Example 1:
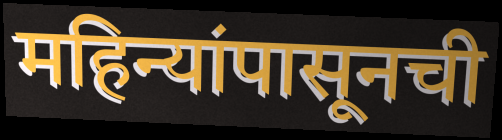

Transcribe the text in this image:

महिन्यांपासूनची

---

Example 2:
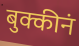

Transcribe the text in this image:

बुक्कीनं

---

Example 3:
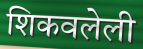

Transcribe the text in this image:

शिकवलेली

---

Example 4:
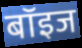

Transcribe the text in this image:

बॉइज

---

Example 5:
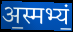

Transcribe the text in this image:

अ॒स्मभ्यं॒